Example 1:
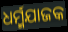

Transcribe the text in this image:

ଧର୍ମ୍ମଯାଜକ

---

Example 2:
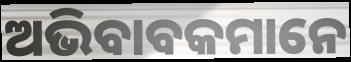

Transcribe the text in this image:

ଅଭିବାବକମାନେ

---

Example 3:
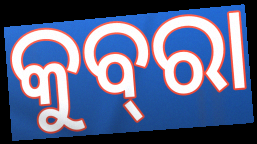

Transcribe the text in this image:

କୁବ୍‍ରା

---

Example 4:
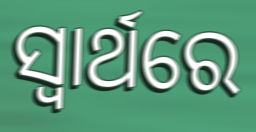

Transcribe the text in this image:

ସ୍ବାର୍ଥରେ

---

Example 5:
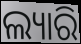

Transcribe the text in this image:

ଲ୍ୟାରି